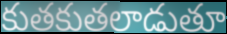
కుతకుతలాడుతూ